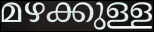
മഴക്കുള്ള